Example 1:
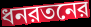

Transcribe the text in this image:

ধনরতনের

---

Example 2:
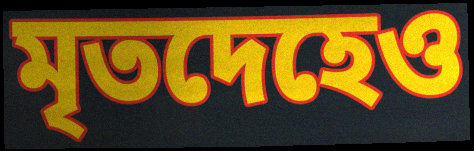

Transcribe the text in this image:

মৃতদেহেও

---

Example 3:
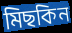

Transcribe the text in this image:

মিছকিন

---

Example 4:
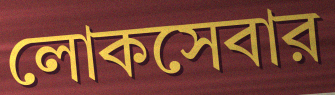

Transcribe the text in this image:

লোকসেবার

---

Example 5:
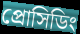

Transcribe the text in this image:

প্রোসিডিং